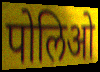
पोलिओ